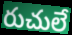
రుచులే